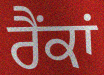
ਰੈਂਕਾਂ